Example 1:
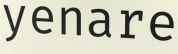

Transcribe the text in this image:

yenare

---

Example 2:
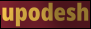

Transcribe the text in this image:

upodesh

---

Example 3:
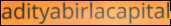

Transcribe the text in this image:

adityabirlacapital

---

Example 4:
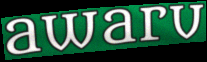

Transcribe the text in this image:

awaru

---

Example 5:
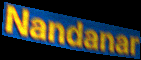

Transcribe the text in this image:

Nandanar